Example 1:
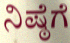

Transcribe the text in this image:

ನಿಷ್ಠೆಗೆ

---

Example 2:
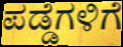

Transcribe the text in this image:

ಪಡ್ಡೆಗಳಿಗೆ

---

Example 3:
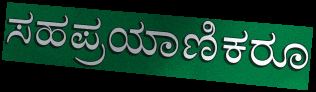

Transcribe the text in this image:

ಸಹಪ್ರಯಾಣಿಕರೂ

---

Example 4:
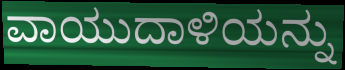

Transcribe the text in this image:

ವಾಯುದಾಳಿಯನ್ನು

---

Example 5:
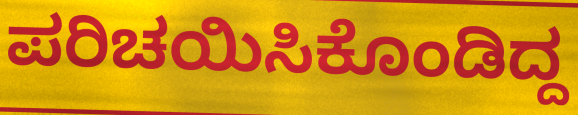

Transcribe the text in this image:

ಪರಿಚಯಿಸಿಕೊಂಡಿದ್ದ